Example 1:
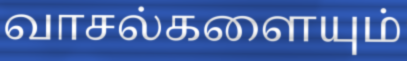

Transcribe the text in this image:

வாசல்களையும்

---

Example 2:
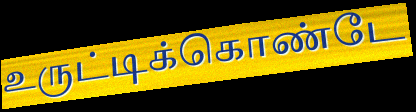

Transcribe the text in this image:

உருட்டிக்கொண்டே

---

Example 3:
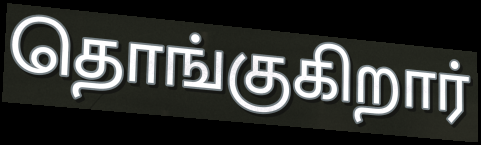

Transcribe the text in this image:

தொங்குகிறார்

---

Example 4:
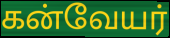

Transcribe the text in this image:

கன்வேயர்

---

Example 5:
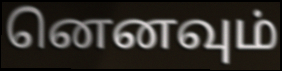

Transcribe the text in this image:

னெனவும்